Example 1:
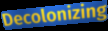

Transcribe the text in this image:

Decolonizing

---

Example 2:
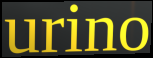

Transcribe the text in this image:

urino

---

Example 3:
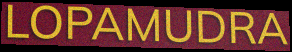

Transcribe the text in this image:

LOPAMUDRA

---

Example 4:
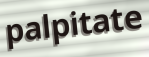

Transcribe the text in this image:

palpitate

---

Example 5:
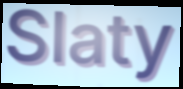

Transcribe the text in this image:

Slaty